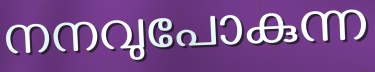
നനവുപോകുന്ന